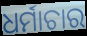
ଧର୍ମାଚାର